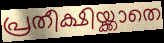
പ്രതീക്ഷിയ്ക്കാതെ